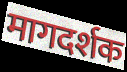
मागदर्शक